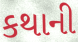
કથાની